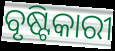
ବୃଷ୍ଟିକାରୀ